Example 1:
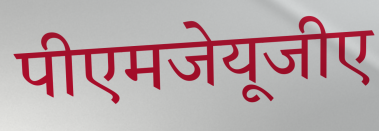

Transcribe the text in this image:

पीएमजेयूजीए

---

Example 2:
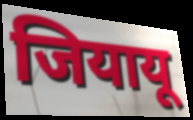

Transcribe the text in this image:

जियायू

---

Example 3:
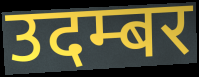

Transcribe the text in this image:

उदम्बर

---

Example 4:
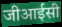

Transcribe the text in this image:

जीआईसी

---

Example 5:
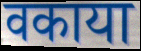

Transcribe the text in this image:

वकाया